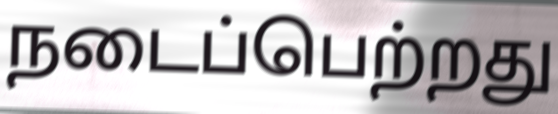
நடைப்பெற்றது